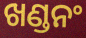
ଖଣ୍ଡନଂ